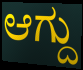
ಆಗ್ದು